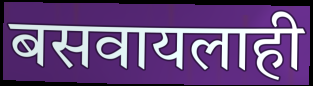
बसवायलाही